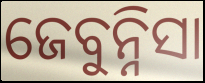
ଜେବୁନ୍ନିସା